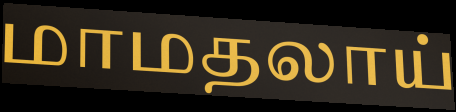
மாமதலாய்